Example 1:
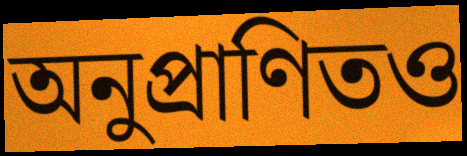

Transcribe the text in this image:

অনুপ্রাণিতও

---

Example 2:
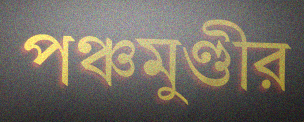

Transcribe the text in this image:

পঞ্চমুণ্ডীর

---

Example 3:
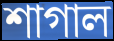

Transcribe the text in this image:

শাগাল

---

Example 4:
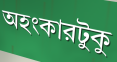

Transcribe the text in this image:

অহংকারটুকু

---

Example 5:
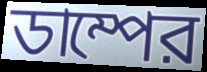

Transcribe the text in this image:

ডাম্পের